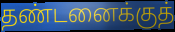
தண்டனைக்குத்